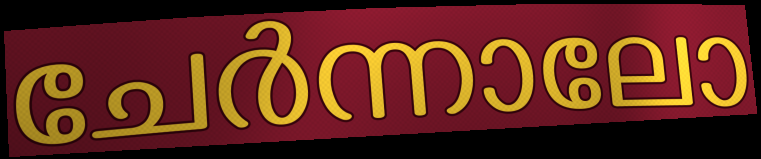
ചേർന്നാലോ